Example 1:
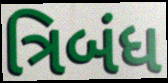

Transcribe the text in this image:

ત્રિબંધ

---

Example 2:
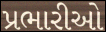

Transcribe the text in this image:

પ્રભારીઓ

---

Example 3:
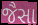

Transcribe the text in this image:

જૈસા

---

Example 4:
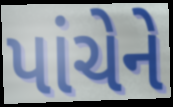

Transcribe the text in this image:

પાંચેને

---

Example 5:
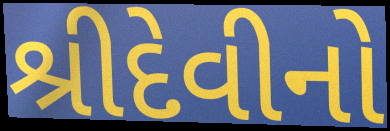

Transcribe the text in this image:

શ્રીદેવીનો